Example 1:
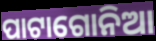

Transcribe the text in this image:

ପାଟାଗୋନିଆ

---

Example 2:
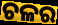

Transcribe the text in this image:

ଚଳର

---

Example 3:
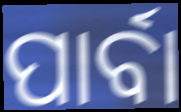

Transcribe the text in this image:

ପାର୍ବା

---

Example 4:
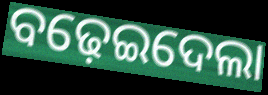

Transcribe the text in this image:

ବଢ଼େଇଦେଲା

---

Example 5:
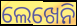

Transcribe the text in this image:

ଲେଖେନି